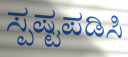
ಸ್ಪಷ್ಟಪಡಿಸಿ